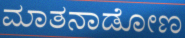
ಮಾತನಾಡೋಣ